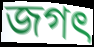
জগৎ